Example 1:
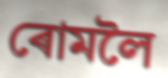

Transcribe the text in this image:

ৰোমলৈ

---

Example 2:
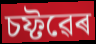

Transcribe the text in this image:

চফ্টৱেৰ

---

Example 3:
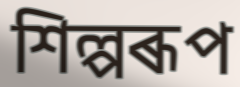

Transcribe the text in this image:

শিল্পৰূপ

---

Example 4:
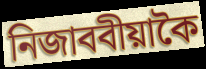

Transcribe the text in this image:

নিজাববীয়াকৈ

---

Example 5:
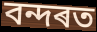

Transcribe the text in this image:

বন্দৰত